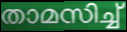
താമസിച്ച്